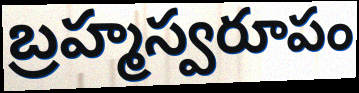
బ్రహ్మస్వరూపం